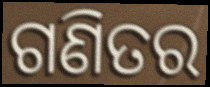
ଗଣିତର